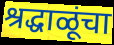
श्रद्धाळूंचा